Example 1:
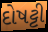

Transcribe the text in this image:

દોષટ્ટી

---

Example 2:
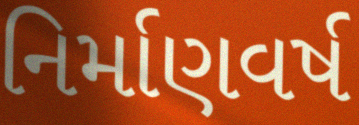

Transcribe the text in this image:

નિર્માણવર્ષ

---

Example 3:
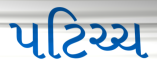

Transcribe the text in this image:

પટિચ્ચ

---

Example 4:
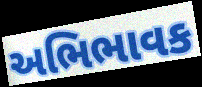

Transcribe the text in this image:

અભિભાવક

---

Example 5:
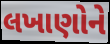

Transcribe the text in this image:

લખાણોને